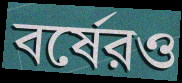
বর্ষেরও